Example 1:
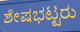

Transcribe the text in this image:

ಶೇಷಭಟ್ಟರು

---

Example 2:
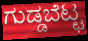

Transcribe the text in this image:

ಗುಡ್ಡಬೆಟ್ಟ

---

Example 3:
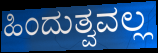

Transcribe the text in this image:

ಹಿಂದುತ್ವವಲ್ಲ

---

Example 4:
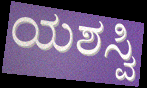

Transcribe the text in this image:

ಯಶಸ್ವಿ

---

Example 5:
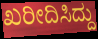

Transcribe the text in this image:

ಖರೀದಿಸಿದ್ದು